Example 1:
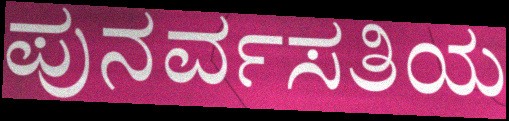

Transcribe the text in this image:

ಪುನರ್ವಸತಿಯ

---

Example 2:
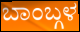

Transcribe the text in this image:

ಬಾಂಬ್ಗಳ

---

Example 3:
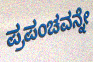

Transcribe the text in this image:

ಪ್ರಪಂಚವನ್ನೇ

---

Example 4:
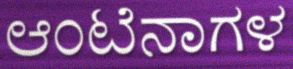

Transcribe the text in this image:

ಆಂಟೆನಾಗಳ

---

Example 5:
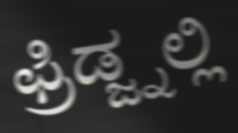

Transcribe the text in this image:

ಫ್ರಿಡ್ಜ್ನಲ್ಲಿ